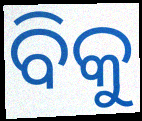
ବିକୁ